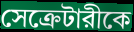
সেক্রেটারীকে